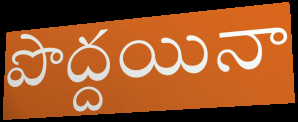
పొద్దయినా